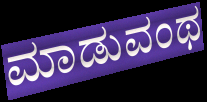
ಮಾಡುವಂಥ